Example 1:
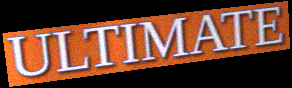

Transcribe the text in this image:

ULTIMATE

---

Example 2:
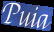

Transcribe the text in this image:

Puia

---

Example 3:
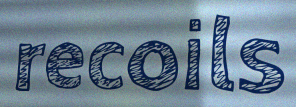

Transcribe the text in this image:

recoils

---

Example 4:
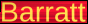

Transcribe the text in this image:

Barratt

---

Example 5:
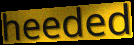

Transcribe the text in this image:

heeded